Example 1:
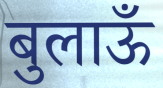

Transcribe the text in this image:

बुलाऊँ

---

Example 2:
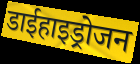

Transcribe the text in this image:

डाईहाइड्रोजन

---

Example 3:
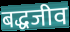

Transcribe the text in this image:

बद्धजीव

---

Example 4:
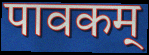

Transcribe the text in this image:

पावकम्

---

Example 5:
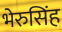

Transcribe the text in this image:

भेरुसिंह